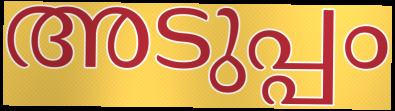
അടുപ്പം